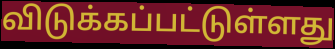
விடுக்கப்பட்டுள்ளது